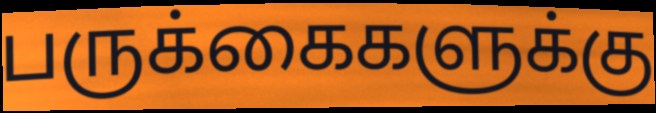
பருக்கைகளுக்கு